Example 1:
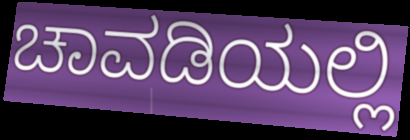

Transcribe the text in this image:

ಚಾವಡಿಯಲ್ಲಿ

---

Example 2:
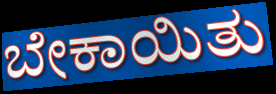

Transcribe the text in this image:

ಬೇಕಾಯಿತು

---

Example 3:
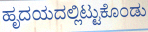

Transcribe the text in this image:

ಹೃದಯದಲ್ಲಿಟ್ಟುಕೊಂಡು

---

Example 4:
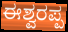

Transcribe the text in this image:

ಈಶ್ವರಪ್ಪ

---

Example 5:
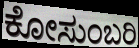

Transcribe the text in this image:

ಕೋಸುಂಬರಿ